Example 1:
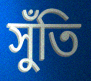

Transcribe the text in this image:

সুঁতি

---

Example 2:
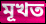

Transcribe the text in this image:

মূখত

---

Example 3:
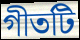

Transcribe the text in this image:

গীতটি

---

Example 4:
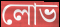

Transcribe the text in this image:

লোভ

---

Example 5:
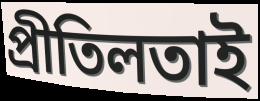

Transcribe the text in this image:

প্ৰীতিলতাই